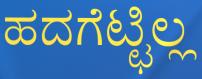
ಹದಗೆಟ್ಟಿಲ್ಲ